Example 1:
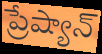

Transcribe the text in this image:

ప్రేష్యాన్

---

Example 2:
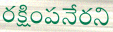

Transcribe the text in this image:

రక్షింపనేరని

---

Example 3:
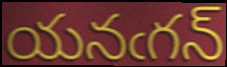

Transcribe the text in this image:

యనఁగన్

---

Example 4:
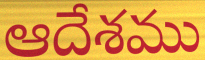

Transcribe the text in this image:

ఆదేశము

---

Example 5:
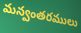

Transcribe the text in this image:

మన్వంతరములు